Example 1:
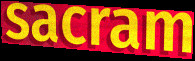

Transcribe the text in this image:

sacram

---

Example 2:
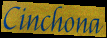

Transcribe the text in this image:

Cinchona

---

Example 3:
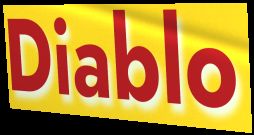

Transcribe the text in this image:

Diablo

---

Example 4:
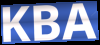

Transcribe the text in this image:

KBA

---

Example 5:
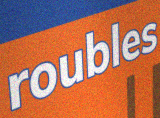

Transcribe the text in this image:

roubles